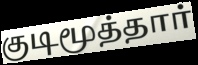
குடிமூத்தார்